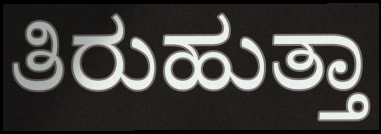
ತಿರುಹುತ್ತಾ